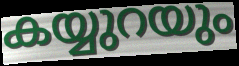
കയ്യുറയും